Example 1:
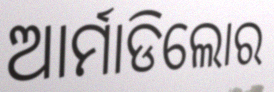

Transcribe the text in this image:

ଆର୍ମାଡିଲୋର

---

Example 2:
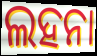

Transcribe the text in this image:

ଲହନା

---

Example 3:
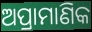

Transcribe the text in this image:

ଅପ୍ରାମାଣିକ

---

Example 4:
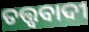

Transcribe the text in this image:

ତତ୍ତ୍ଵବାଦୀ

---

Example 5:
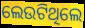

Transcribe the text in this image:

ଲେଉଟିଥିଲେ